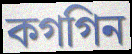
কগগিন